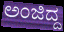
ಅಂಜಿದ್ದ